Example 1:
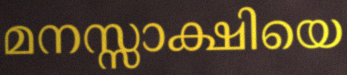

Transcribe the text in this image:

മനസ്സാക്ഷിയെ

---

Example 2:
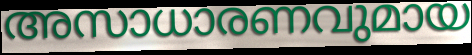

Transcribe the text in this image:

അസാധാരണവുമായ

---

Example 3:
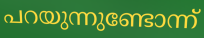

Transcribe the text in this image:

പറയുന്നുണ്ടോന്ന്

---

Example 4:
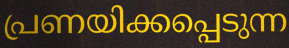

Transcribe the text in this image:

പ്രണയിക്കപ്പെടുന്ന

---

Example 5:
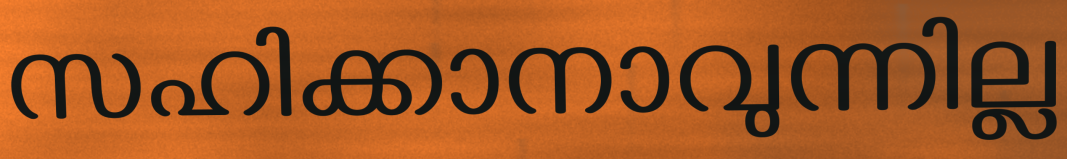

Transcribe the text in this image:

സഹിക്കാനാവുന്നില്ല